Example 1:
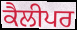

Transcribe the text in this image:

ਕੈਲੀਪਰ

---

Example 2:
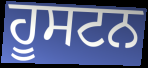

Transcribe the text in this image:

ਹੂਸਟਨ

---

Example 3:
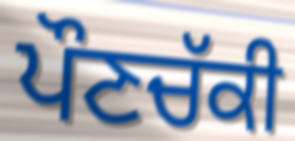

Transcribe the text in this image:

ਪੌਣਚੱਕੀ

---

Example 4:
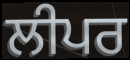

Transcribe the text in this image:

ਲੀਪਰ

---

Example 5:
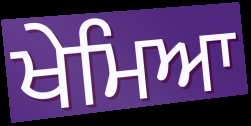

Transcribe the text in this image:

ਖੇਮਿਆ